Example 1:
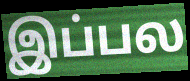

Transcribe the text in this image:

இப்பல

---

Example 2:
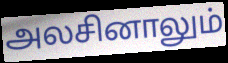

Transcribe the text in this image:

அலசினாலும்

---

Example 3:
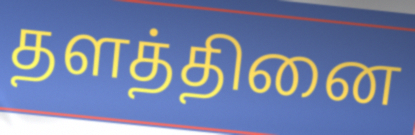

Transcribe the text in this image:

தளத்தினை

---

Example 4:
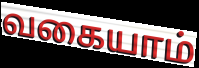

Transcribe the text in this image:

வகையாம்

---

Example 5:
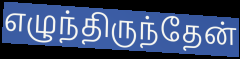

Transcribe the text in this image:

எழுந்திருந்தேன்